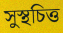
সুস্থচিত্ত